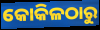
କୋକିଳଠାରୁ